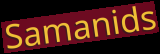
Samanids